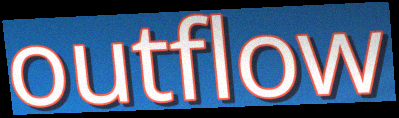
outflow